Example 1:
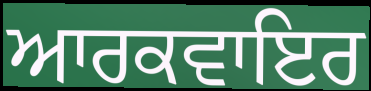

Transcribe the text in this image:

ਆਰਕਵਾਇਰ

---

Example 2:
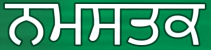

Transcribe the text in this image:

ਨਮਸਤਕ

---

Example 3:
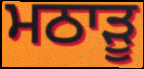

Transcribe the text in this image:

ਮਠਾੜੂ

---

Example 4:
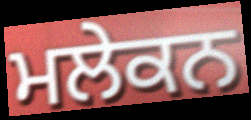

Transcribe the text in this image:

ਮਲੇਕਨ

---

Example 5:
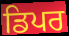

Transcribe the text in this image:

ਡਿਪਰ